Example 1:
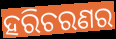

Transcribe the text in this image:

ହରିଚରଣର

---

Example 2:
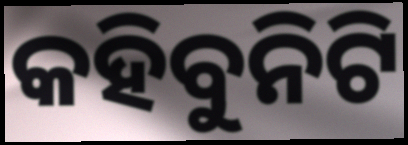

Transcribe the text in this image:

କହିବୁନିଟି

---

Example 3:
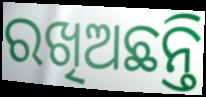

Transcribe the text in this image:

ରଖିଅଛନ୍ତି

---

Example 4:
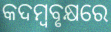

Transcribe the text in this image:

କଦମ୍ୱବୃକ୍ଷରେ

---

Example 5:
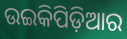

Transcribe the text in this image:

ଉଇକିପିଡ଼ିଆର